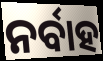
ନର୍ବାହ